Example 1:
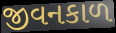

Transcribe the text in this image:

જીવનકાળ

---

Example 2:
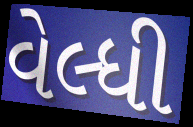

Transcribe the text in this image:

વેલ્ધી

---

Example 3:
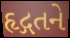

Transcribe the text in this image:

હૃદ્ગતને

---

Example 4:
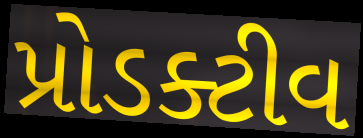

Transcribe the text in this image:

પ્રોડક્ટીવ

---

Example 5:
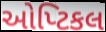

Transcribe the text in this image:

ઓપ્ટિકલ